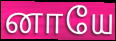
னாயே